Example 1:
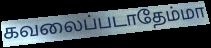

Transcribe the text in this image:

கவலைப்படாதேம்மா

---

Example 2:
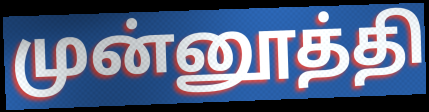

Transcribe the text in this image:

முன்னூத்தி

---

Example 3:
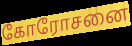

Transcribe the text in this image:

கோரோசனை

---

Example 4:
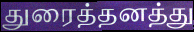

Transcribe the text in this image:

துரைத்தனத்து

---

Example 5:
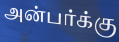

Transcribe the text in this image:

அன்பர்க்கு